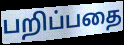
பறிப்பதை